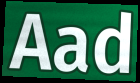
Aad